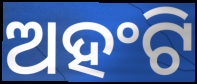
ଅହଂଟି